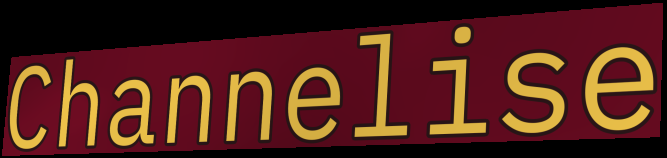
Channelise